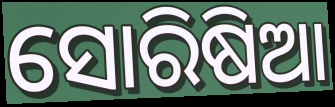
ସୋରିଷିଆ